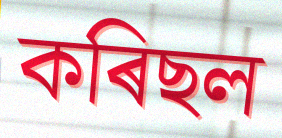
কৰিছল